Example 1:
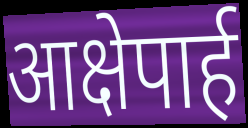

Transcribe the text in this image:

आक्षेपार्ह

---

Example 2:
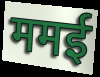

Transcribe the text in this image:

ममई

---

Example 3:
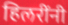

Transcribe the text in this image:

हिलरींनी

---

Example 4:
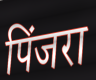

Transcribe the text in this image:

पिंजरा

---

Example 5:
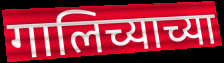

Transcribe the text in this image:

गालिच्याच्या